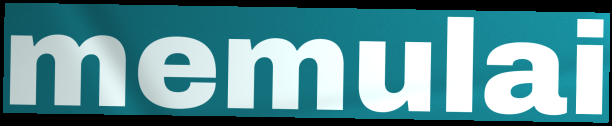
memulai